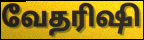
வேதரிஷி